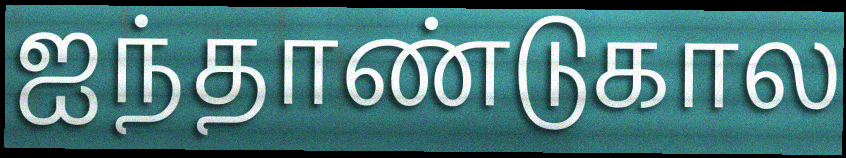
ஐந்தாண்டுகால